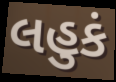
લહુકં